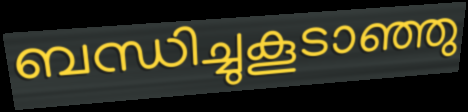
ബന്ധിച്ചുകൂടാഞ്ഞു